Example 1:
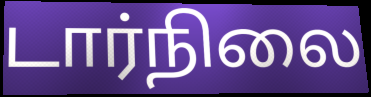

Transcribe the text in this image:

டார்நிலை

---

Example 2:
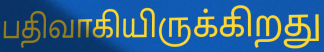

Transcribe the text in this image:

பதிவாகியிருக்கிறது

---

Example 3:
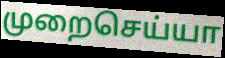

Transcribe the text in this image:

முறைசெய்யா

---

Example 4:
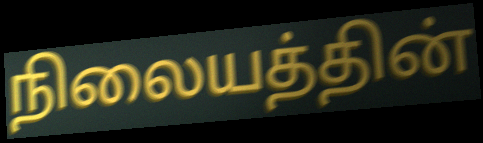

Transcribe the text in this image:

நிலையத்தின்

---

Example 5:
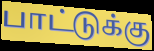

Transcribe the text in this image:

பாட்டுக்கு